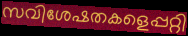
സവിശേഷതകളെപ്പറ്റി